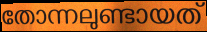
തോന്നലുണ്ടായത്